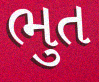
ભુત